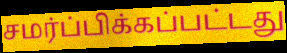
சமர்ப்பிக்கப்பட்டது